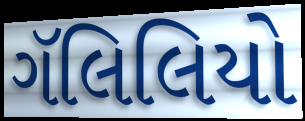
ગૅલિલિયો